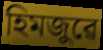
হিমজুৱে